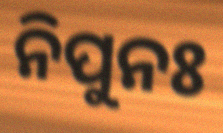
ନିପୁନଃ